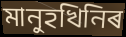
মানুহখিনিৰ